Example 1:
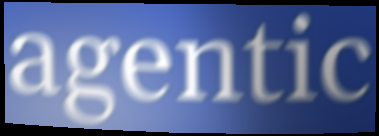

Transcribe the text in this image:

agentic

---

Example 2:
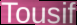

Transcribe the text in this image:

Tousif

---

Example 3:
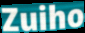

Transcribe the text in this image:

Zuiho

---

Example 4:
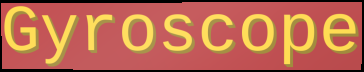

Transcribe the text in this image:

Gyroscope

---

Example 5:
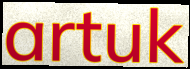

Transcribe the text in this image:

artuk